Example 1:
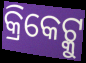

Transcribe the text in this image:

କ୍ରିକେଟ୍କୁ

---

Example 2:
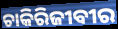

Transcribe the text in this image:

ଚାକିରିଜୀବୀର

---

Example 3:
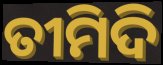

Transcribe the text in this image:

ତୀମିଦି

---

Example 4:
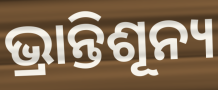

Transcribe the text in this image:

ଭ୍ରାନ୍ତିଶୂନ୍ୟ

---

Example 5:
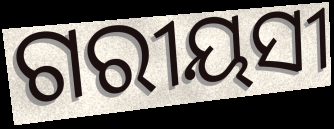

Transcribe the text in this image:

ଗରୀୟସୀ